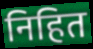
निहित